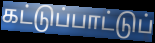
கட்டுப்பாட்டுப்